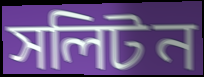
সলিটন